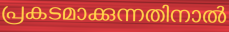
പ്രകടമാക്കുന്നതിനാൽ